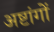
अष्टांगों